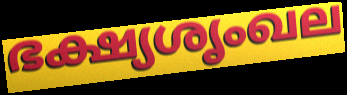
ഭക്ഷ്യശൃംഖല